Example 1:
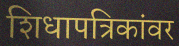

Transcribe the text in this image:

शिधापत्रिकांवर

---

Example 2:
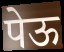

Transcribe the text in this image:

पेऊ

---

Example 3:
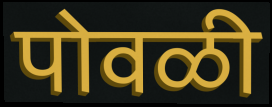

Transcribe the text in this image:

पोवळी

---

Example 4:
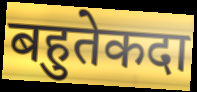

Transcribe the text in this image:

बहुतेकदा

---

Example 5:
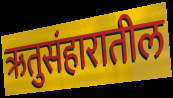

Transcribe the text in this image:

ऋतुसंहारातील